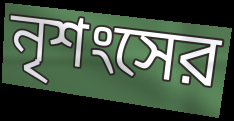
নৃশংসের